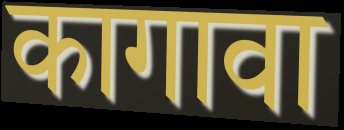
कागावा